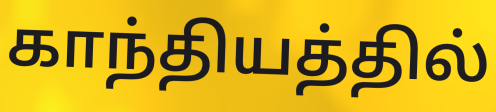
காந்தியத்தில்